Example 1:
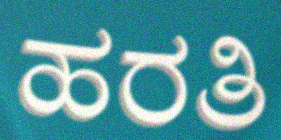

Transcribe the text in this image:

ಹರತಿ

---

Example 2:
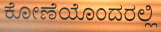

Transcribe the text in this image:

ಕೋಣೆಯೊಂದರಲ್ಲಿ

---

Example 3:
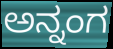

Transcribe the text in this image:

ಅನ್ನಂಗ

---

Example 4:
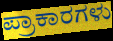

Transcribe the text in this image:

ಪ್ರಾಕಾರಗಳು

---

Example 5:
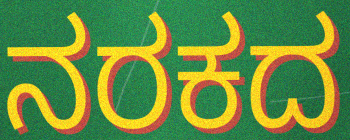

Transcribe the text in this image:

ನರಕದ